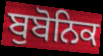
ਬੁਬੋਨਿਕ